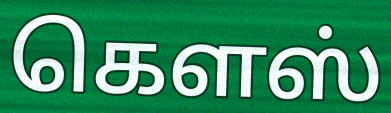
கௌஸ்